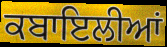
ਕਬਾਇਲੀਆਂ